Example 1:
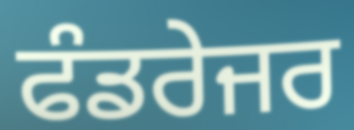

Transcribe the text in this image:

ਫੰਡਰੇਜਰ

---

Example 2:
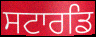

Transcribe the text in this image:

ਸਟਾਰਡਿ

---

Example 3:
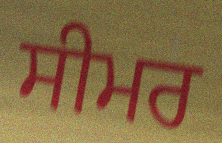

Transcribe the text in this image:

ਸੀਮਰ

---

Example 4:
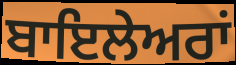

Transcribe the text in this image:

ਬਾਇਲੇਅਰਾਂ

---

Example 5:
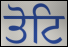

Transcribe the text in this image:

ਤੋਟਿ